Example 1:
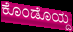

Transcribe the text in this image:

ಕೊಂಡೊಯ್ದ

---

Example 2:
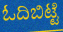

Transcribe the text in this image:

ಓದಿಬಿಟ್ಟೆ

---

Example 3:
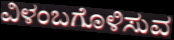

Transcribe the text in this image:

ವಿಳಂಬಗೊಳಿಸುವ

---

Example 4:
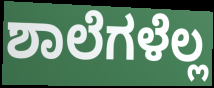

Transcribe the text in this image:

ಶಾಲೆಗಳೆಲ್ಲ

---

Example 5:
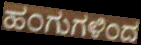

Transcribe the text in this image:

ಹಂಗುಗಳಿಂದ